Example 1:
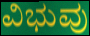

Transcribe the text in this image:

ವಿಭುವು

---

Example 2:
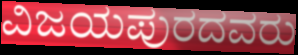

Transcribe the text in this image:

ವಿಜಯಪುರದವರು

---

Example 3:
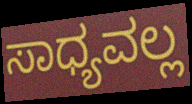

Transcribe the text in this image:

ಸಾಧ್ಯವಲ್ಲ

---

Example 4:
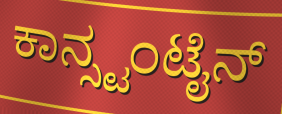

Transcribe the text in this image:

ಕಾನ್ಸ್ಟಂಟೈನ್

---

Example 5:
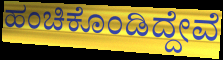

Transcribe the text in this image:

ಹಂಚಿಕೊಂಡಿದ್ದೇವೆ